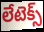
లేటెక్స్